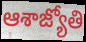
ఆశాజ్యోతి